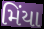
મિંયા